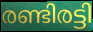
രണ്ടിരട്ടി